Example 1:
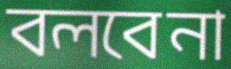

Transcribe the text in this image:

বলবেনা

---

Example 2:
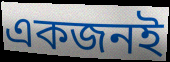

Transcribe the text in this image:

একজনই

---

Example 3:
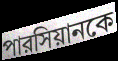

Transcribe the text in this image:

পারসিয়ানকে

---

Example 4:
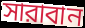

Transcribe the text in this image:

সারাবান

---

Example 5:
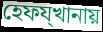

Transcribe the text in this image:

হেফয্খানায়